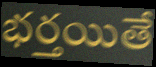
భర్తయితే